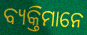
ବ୍ୟକ୍ତିମାନେ